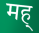
मह्